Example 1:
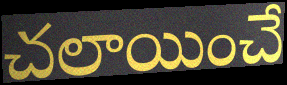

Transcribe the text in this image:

చలాయించే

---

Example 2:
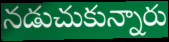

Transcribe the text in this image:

నడుచుకున్నారు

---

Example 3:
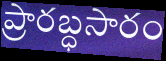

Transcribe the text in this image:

ప్రారబ్ధసారం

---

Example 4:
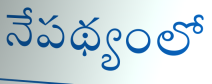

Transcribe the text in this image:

నేపథ్యంలో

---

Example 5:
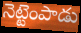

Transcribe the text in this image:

నెట్టెంపాడు